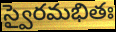
స్వైరమభితః